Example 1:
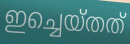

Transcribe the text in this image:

ഇച്ചെയ്തത്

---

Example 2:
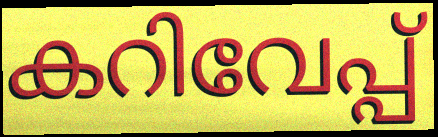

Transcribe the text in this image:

കറിവേപ്പ്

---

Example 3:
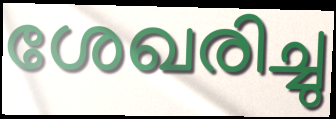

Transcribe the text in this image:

ശേഖരിച്ചു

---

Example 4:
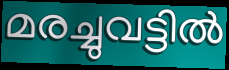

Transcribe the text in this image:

മരച്ചുവട്ടിൽ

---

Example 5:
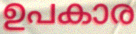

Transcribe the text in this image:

ഉപകാര